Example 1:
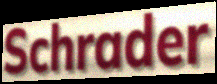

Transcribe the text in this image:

Schrader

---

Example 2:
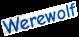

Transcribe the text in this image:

Werewolf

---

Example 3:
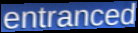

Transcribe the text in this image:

entranced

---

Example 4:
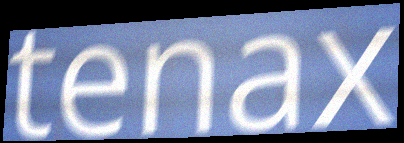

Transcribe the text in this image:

tenax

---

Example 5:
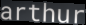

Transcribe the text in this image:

arthur